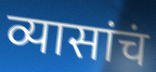
व्यासांचं